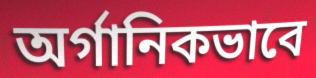
অর্গানিকভাবে